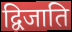
द्विजाति